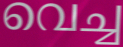
വെച്ച